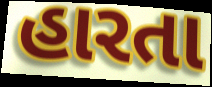
હારતા